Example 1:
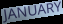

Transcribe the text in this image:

JANUARY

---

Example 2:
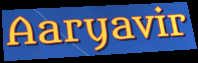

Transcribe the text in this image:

Aaryavir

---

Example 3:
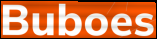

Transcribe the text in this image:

Buboes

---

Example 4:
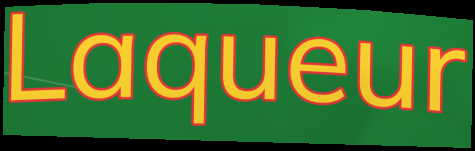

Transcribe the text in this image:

Laqueur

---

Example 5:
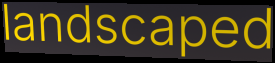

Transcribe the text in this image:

landscaped